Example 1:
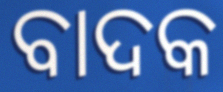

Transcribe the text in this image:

ବାଦକ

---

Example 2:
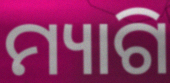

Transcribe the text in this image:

ମ୍ୟାଗି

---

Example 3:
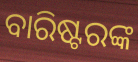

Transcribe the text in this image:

ବାରିଷ୍ଟରଙ୍କ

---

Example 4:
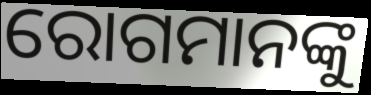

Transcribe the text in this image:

ରୋଗମାନଙ୍କୁ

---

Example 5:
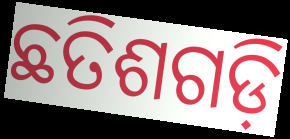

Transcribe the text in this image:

ଛତିଶଗଡ଼ି